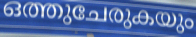
ഒത്തുചേരുകയും